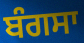
ਬੰਗਸਾ